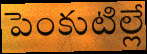
పెంకుటిల్లే